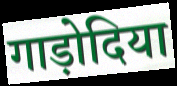
गाड़ोदिया